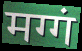
मग्गं